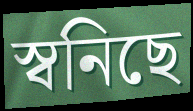
স্বনিছে